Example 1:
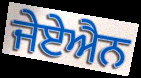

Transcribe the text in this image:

ਜੇਏਐਨ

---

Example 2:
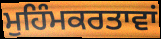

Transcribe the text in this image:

ਮੁਹਿੰਮਕਰਤਾਵਾਂ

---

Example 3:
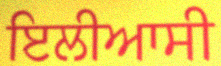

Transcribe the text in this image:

ਇਲੀਆਸੀ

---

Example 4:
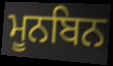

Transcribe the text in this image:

ਮੂਨਬਿਨ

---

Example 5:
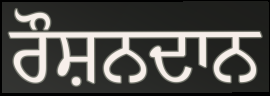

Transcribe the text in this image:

ਰੌਸ਼ਨਦਾਨ